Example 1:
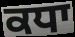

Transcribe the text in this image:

ਕਧਾ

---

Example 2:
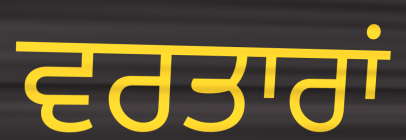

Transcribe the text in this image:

ਵਰਤਾਰਾਂ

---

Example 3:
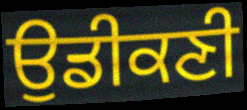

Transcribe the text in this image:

ਉਡੀਕਣੀ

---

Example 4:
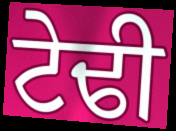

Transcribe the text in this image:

ਟੇਢੀ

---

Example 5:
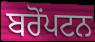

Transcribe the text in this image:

ਬਰੋਂਪਟਨ